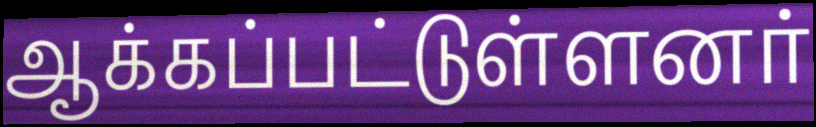
ஆக்கப்பட்டுள்ளனர்